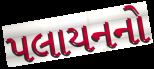
પલાયનનો